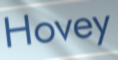
Hovey